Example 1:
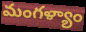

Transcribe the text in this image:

మంగళ్యాం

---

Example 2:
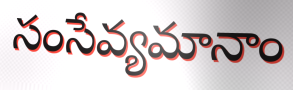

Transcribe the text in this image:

సంసేవ్యమానాం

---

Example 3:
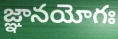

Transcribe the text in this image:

జ్ఞానయోగః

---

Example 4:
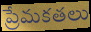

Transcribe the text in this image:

ప్రేమకతలు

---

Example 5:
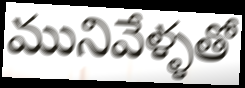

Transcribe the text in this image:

మునివేళ్ళతో